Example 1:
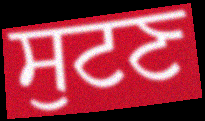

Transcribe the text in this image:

ਸੁਟਣ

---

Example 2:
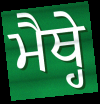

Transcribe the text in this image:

ਮੈਥ੍ਹੇ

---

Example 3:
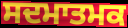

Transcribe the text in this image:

ਸਦਮਾਤਮਕ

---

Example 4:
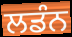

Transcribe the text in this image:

ਲਡੰਨ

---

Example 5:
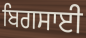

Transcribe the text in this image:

ਬਿਗਸਾਈ